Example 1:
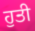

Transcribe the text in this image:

ਹੁਤੀ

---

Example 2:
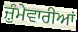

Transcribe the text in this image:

ਜ਼ੁੰਮੇਵਾਰੀਆਂ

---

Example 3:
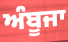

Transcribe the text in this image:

ਅੰਬੂਜਾ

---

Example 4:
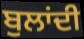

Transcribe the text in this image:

ਬੁਲਾਂਦੀ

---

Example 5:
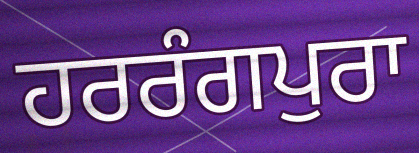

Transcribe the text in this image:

ਹਰਰੰਗਪੁਰਾ